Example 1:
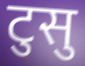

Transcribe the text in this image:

टुसु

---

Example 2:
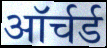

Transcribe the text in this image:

ऑर्चर्ड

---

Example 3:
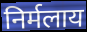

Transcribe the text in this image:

निर्मलाय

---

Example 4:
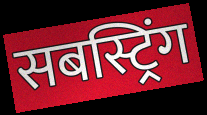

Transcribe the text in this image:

सबस्ट्रिंग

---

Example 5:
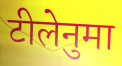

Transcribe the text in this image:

टीलेनुमा